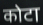
कोटा